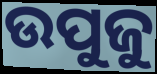
ଉପୁଜୁ